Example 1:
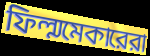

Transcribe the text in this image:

ফিল্মমেকারেরা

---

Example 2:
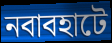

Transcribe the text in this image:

নবাবহাটে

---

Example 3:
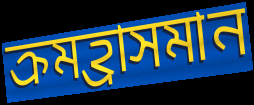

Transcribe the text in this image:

ক্রমহ্রাসমান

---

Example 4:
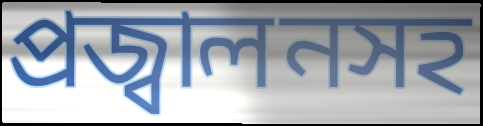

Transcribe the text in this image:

প্রজ্বালনসহ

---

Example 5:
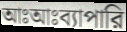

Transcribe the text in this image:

আঃআঃব্যাপারি